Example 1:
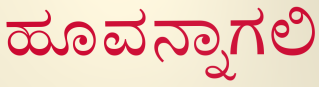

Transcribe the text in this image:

ಹೂವನ್ನಾಗಲಿ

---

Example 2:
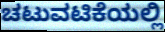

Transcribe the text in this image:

ಚಟುವಟಿಕೆಯಲ್ಲಿ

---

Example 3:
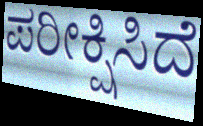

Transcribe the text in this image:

ಪರೀಕ್ಷಿಸಿದೆ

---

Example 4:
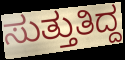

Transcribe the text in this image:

ಸುತ್ತುತಿದ್ದ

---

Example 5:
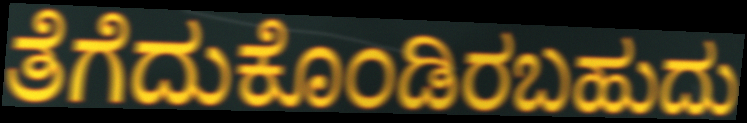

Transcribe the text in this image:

ತೆಗೆದುಕೊಂಡಿರಬಹುದು